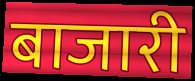
बाजारी